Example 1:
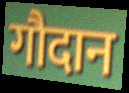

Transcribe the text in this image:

गौदान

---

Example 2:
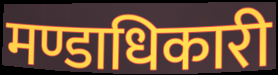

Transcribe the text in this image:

मण्डाधिकारी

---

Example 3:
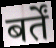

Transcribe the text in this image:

बर्तें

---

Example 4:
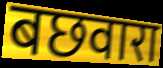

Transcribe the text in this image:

बछवारा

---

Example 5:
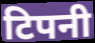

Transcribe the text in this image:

टिपनी